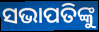
ସଭାପତିଙ୍କୁ